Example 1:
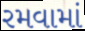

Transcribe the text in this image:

રમવામાં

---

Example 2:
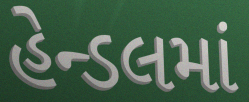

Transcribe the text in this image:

હેન્ડલમાં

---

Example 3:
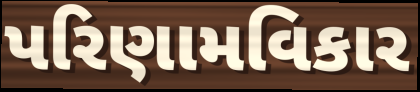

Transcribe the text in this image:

પરિણામવિકાર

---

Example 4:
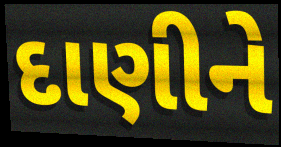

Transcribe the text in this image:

દાણીને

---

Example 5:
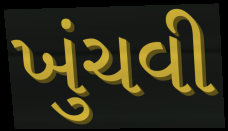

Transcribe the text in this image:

ખુંચવી